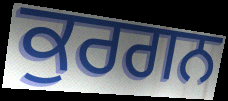
ਕੁਰਗਨ